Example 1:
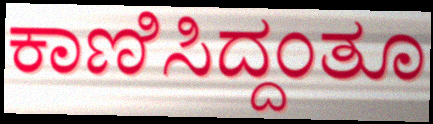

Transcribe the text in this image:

ಕಾಣಿಸಿದ್ದಂತೂ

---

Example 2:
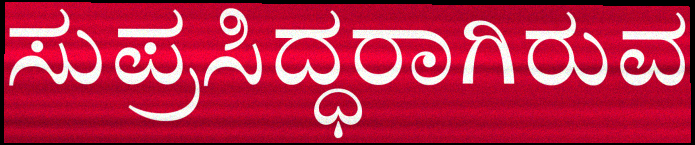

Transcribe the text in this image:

ಸುಪ್ರಸಿದ್ಧರಾಗಿರುವ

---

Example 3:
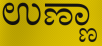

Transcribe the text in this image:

ಉಣ್ಣಾ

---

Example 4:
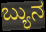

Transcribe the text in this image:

ಬ್ಯುನ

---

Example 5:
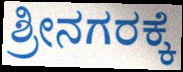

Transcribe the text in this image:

ಶ್ರೀನಗರಕ್ಕೆ